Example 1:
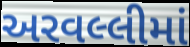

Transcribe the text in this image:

અરવલ્લીમાં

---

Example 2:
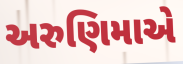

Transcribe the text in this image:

અરુણિમાએ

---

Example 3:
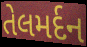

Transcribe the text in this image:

તેલમર્દન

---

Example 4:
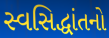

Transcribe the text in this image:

સ્વસિદ્ધાંતનો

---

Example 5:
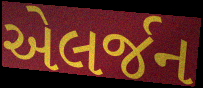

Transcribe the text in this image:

એલર્જન